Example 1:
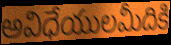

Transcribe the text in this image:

అవిధేయులమీదికి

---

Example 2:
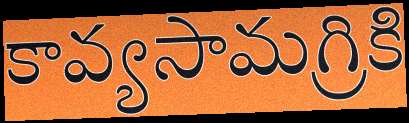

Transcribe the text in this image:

కావ్యసామగ్రికి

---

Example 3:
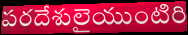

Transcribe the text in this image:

పరదేశులైయుంటిరి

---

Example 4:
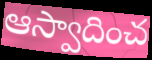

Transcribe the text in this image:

ఆస్వాదించ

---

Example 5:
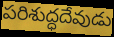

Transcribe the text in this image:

పరిశుద్ధదేవుడు